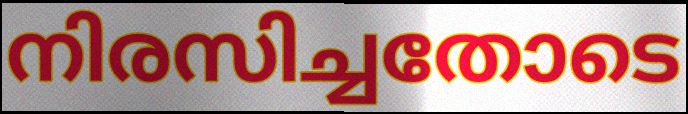
നിരസിച്ചതോടെ